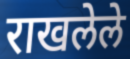
राखलेले